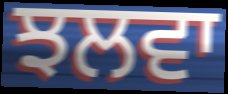
ਝਲਵਾ